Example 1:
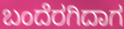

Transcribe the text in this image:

ಬಂದೆರಗಿದಾಗ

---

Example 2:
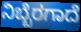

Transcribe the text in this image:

ನಿಬ್ಬೆರಗಾದೆ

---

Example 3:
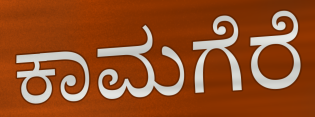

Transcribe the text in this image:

ಕಾಮಗೆರೆ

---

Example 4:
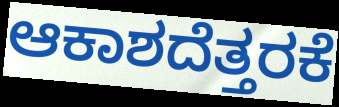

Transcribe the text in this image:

ಆಕಾಶದೆತ್ತರಕೆ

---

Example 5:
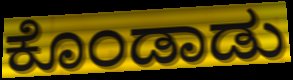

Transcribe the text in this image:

ಕೊಂಡಾಡು